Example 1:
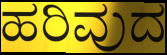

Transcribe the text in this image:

ಹರಿವುದ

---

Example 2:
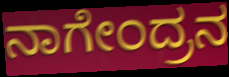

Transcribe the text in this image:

ನಾಗೇಂದ್ರನ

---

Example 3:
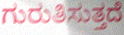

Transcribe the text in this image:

ಗುರುತಿಸುತ್ತದೆ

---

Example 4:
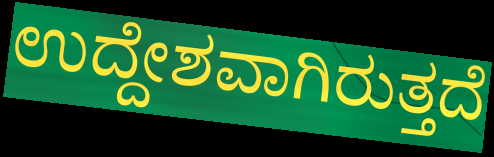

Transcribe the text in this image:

ಉದ್ದೇಶವಾಗಿರುತ್ತದೆ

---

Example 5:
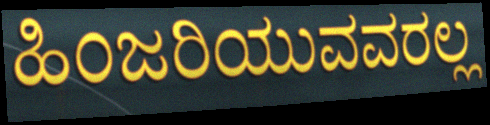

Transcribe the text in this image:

ಹಿಂಜರಿಯುವವರಲ್ಲ